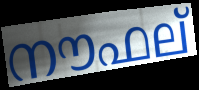
നൗഫല്